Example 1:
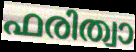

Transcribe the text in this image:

ഫരിത്വാ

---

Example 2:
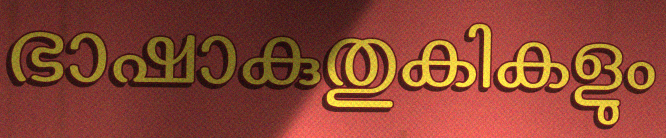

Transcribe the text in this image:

ഭാഷാകുതുകികളും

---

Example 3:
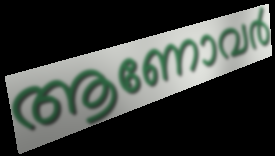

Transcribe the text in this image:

ആണോവർ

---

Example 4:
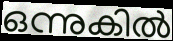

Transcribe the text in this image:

ഒന്നുകിൽ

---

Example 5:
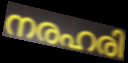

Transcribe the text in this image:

നരഹരി